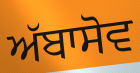
ਅੱਬਾਸੋਵ